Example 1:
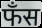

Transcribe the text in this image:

फँस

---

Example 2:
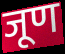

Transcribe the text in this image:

जूण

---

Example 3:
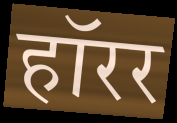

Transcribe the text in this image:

हॉरर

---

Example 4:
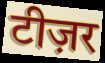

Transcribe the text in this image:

टीज़र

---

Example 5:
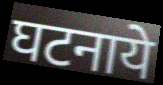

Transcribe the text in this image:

घटनाये